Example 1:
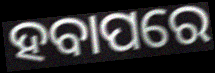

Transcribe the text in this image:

ହବାପରେ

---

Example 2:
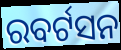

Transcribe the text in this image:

ରବର୍ଟସନ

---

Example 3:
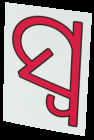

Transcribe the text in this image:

ସ୍ୱ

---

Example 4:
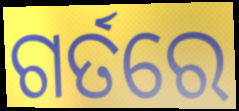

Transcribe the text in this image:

ଗର୍ତରେ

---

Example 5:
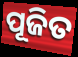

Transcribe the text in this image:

ପୂଜିତ